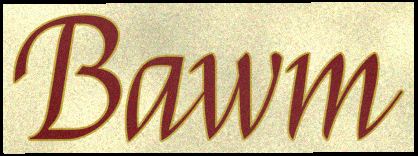
Bawm